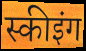
स्कीइंग